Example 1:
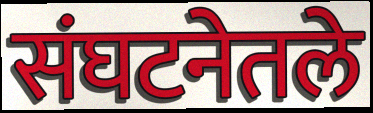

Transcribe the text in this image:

संघटनेतले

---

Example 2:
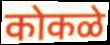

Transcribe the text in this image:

कोकळे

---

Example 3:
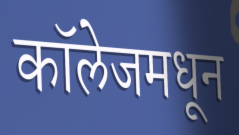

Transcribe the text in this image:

कॉलेजमधून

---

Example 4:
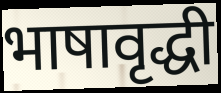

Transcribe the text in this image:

भाषावृद्धी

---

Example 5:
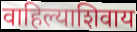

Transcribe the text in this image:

वाहिल्याशिवाय